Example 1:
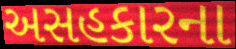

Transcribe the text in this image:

અસહકારના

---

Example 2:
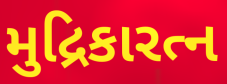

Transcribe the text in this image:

મુદ્રિકારત્ન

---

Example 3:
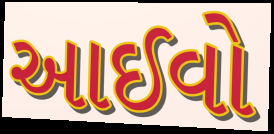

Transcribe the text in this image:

આઈવો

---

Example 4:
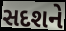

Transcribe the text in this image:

સદશને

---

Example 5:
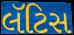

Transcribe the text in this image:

લૅટિસ